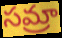
సమ్రా